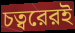
চত্বরেরই